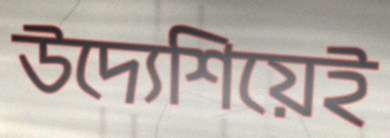
উদ্যেশিয়েই